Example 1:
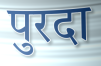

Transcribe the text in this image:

पुरदा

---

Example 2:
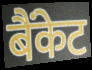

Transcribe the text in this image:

बैंकेट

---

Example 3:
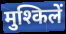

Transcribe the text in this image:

मुश्किलें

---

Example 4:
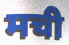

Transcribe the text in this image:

मची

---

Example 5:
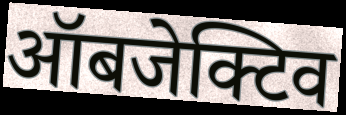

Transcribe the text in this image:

ऑबजेक्टिव